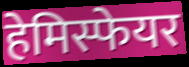
हेमिस्फेयर